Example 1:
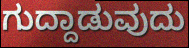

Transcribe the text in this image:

ಗುದ್ದಾಡುವುದು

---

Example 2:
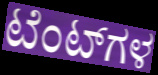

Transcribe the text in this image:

ಟೆಂಟ್‌ಗಳ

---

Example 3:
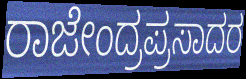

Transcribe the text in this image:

ರಾಜೇಂದ್ರಪ್ರಸಾದರ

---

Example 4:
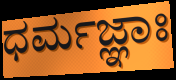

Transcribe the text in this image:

ಧರ್ಮಜ್ಞಾಃ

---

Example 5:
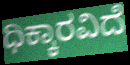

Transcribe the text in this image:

ಧಿಕ್ಕಾರವಿದೆ